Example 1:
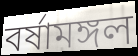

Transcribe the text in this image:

বর্ষামঙ্গল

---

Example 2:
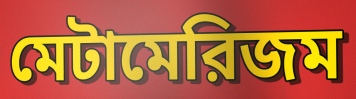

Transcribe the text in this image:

মেটামেরিজম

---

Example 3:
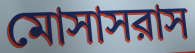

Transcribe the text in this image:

মোসাসরাস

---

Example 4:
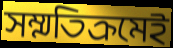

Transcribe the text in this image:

সম্মতিক্রমেই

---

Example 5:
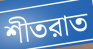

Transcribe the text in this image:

শীতরাত